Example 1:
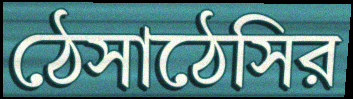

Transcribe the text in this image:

ঠেসাঠেসির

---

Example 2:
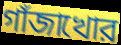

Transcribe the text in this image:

গাঁজাখোর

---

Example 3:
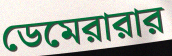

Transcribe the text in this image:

ডেমেরারার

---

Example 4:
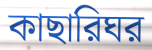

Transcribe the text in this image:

কাছারিঘর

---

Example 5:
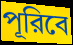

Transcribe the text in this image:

পূরিবে